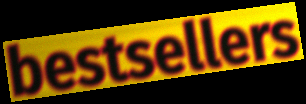
bestsellers